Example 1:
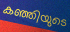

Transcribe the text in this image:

കഞ്ഞിയുടെ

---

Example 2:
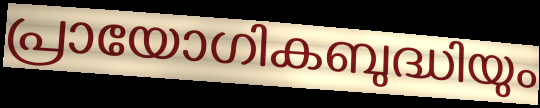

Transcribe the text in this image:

പ്രായോഗികബുദ്ധിയും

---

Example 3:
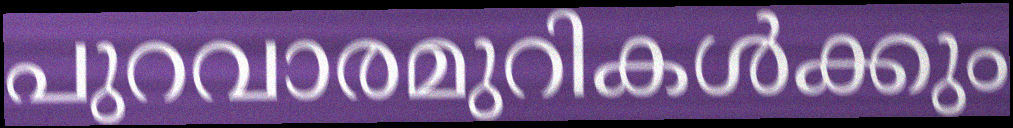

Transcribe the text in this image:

പുറവാരമുറികൾക്കും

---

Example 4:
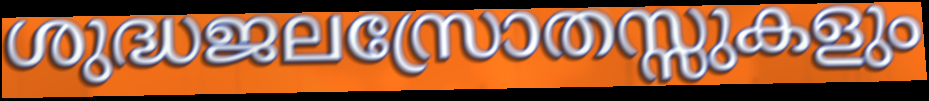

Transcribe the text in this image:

ശുദ്ധജലസ്രോതസ്സുകളും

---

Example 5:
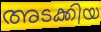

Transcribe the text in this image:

അടക്കിയ